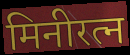
मिनीरत्न